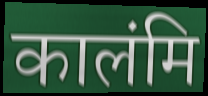
कालंमि